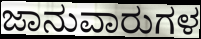
ಜಾನುವಾರುಗಳ